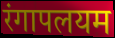
रंगापलयम